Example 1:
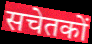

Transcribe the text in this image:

सचेतकों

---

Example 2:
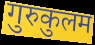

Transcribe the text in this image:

गुरुकुलम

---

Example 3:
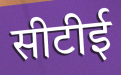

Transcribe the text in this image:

सीटीई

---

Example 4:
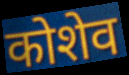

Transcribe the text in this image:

कोशेव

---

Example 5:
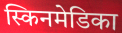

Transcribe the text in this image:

स्किनमेडिका